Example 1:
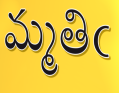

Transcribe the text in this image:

మ్మతిఁ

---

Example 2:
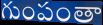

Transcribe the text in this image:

గుంపంతా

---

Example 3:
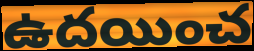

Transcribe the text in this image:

ఉదయించ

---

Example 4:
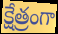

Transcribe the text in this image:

క్షేత్రంగా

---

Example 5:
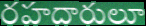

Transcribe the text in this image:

రహదారులూ